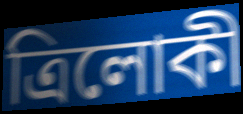
ত্রিলোকী